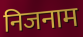
निजनाम